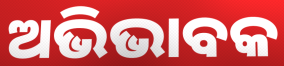
ଅଭିଭାବକ